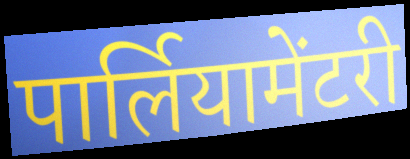
पार्लियामेंटरी